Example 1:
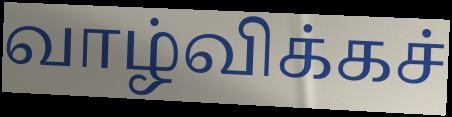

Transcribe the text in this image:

வாழ்விக்கச்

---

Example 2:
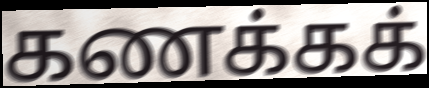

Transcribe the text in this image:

கணக்கக்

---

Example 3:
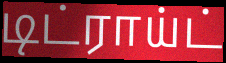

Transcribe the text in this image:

டிட்ராய்ட்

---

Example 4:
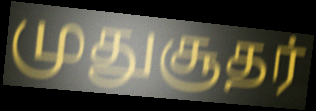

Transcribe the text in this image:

முதுசூதர்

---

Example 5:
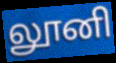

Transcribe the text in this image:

லூனி